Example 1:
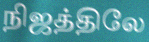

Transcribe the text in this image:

நிஜத்திலே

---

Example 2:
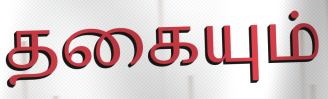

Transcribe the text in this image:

தகையும்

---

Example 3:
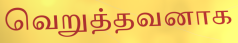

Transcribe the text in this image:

வெறுத்தவனாக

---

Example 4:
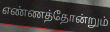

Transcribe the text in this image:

எண்ணத்தோன்றும்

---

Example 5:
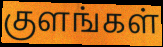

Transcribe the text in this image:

குளங்கள்